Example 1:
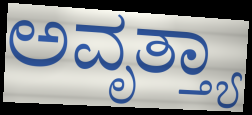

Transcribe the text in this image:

ಅವೃತ್ತ್ಯಾ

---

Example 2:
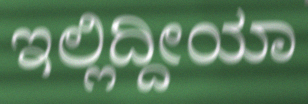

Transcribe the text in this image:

ಇಲ್ಲಿದ್ದೀಯಾ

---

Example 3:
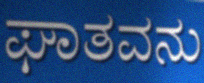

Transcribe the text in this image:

ಘಾತವನು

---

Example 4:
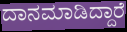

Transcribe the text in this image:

ದಾನಮಾಡಿದ್ದಾರೆ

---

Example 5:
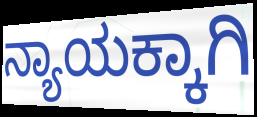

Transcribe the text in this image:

ನ್ಯಾಯಕ್ಕಾಗಿ